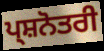
ਪ੍ਸ਼ਨੋਤਰੀ